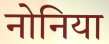
नोनिया